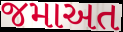
જમાઅત